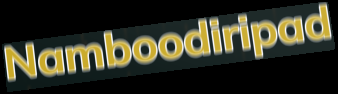
Namboodiripad